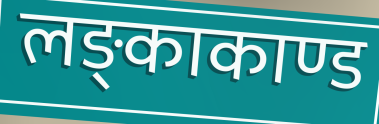
लङ्काकाण्ड